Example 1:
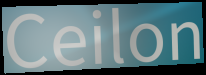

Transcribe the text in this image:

Ceilon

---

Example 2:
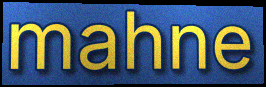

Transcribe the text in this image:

mahne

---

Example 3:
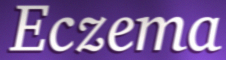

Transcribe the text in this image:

Eczema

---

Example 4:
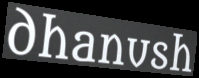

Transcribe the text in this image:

dhanush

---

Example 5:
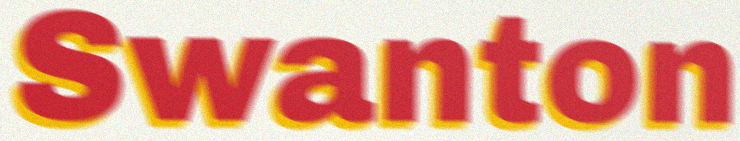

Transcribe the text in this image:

Swanton